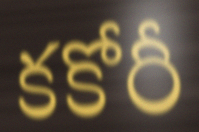
కకోరీ